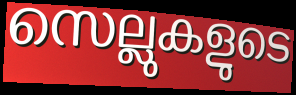
സെല്ലുകളുടെ